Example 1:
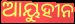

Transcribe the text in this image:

ଆୟୁହୀନ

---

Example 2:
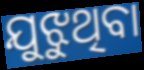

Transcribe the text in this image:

ଯୁଝୁଥିବା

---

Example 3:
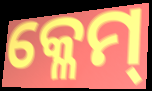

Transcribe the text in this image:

କ୍ଳେମ୍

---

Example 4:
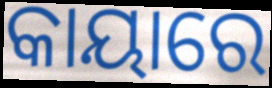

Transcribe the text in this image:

କାୟାରେ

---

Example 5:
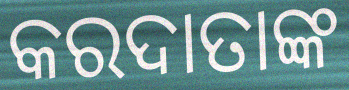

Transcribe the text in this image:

କରଦାତାଙ୍କ